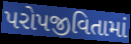
પરોપજીવિતામાં